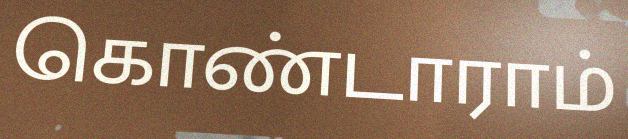
கொண்டாராம்